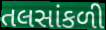
તલસાંકળી